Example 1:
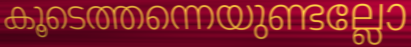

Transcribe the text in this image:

കൂടെത്തന്നെയുണ്ടല്ലോ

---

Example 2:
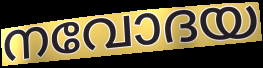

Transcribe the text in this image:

നവോദയ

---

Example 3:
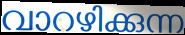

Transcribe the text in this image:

വാറഴിക്കുന്ന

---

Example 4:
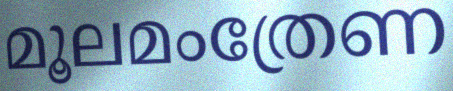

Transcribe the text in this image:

മൂലമംത്രേണ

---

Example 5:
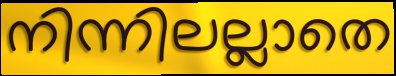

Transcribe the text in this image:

നിന്നിലല്ലാതെ